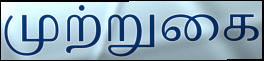
முற்றுகை